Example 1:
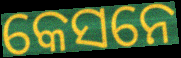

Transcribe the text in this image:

କେସନେ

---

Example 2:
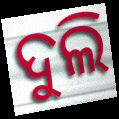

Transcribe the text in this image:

ଦୁଲି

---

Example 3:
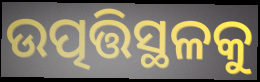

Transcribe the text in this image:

ଉତ୍ପତ୍ତିସ୍ଥଳକୁ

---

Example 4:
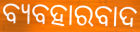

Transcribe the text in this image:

ବ୍ୟବହାରବାଦ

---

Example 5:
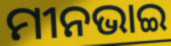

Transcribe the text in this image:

ମୀନଭାଇ